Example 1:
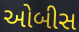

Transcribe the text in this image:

ઓબીસ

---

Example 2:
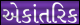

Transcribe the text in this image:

એકાંતરિક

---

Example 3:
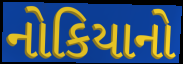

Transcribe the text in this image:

નોકિયાનો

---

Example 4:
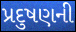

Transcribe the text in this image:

પ્રદુષણની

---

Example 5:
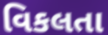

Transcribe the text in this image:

વિકલતા